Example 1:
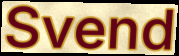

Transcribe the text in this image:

Svend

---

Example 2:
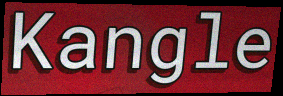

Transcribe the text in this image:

Kangle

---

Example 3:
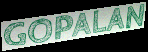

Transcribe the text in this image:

GOPALAN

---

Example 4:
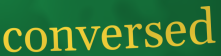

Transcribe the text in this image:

conversed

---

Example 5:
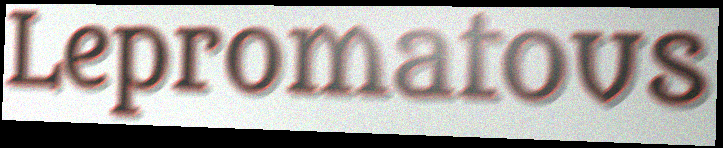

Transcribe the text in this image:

Lepromatous